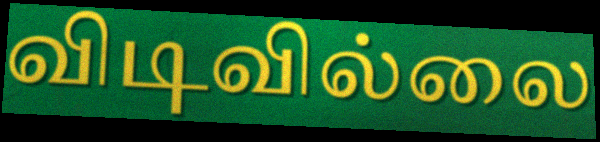
விடிவில்லை